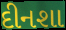
દીનશા